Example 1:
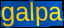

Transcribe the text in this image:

galpa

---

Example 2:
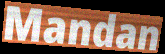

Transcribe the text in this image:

Mandan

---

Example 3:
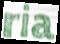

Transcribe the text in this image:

ria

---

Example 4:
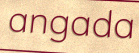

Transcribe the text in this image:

angada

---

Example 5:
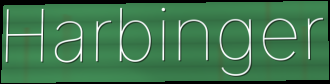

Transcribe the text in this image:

Harbinger